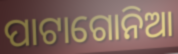
ପାଟାଗୋନିଆ